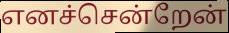
எனச்சென்றேன்